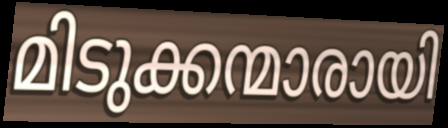
മിടുക്കന്മാരായി